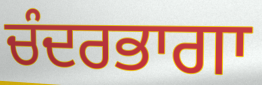
ਚੰਦਰਭਾਗਾ